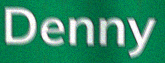
Denny